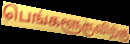
பெங்களூருவிற்கு